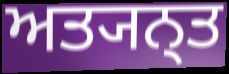
ਅਤ੍ਯਨ੍ਤ